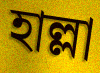
হাল্লা